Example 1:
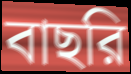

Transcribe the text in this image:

বাছরি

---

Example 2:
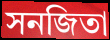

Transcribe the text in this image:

সনজিতা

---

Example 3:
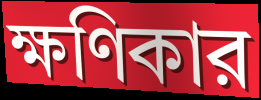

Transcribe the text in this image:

ক্ষণিকার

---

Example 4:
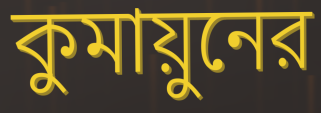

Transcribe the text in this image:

কুমায়ুনের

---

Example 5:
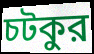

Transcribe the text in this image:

চটকুর